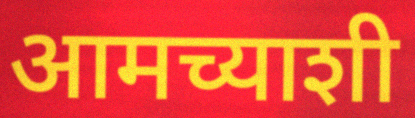
आमच्याशी